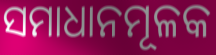
ସମାଧାନମୂଳକ